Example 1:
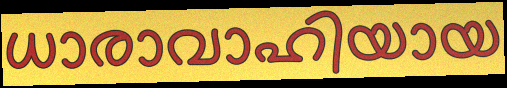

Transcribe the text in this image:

ധാരാവാഹിയായ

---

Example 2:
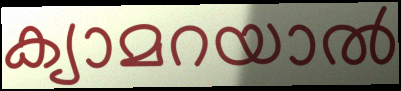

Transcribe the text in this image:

ക്യാമറയാൽ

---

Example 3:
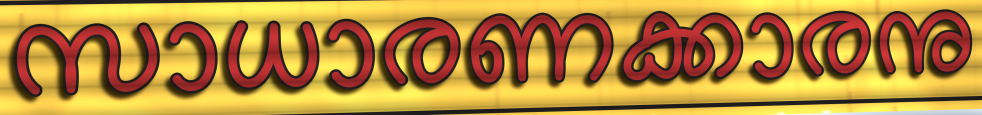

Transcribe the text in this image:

സാധാരണക്കാരനു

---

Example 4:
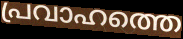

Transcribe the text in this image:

പ്രവാഹത്തെ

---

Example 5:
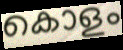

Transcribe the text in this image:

കൊളം